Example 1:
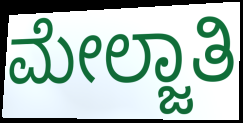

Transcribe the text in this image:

ಮೇಲ್ಜಾತಿ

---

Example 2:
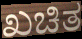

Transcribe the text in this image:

ಖಚಿತ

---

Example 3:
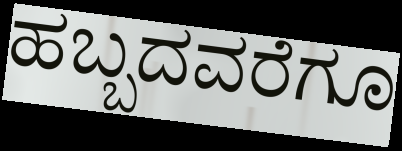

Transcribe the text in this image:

ಹಬ್ಬದವರೆಗೂ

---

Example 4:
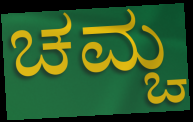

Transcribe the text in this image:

ಚಮ್ಚ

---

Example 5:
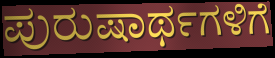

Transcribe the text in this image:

ಪುರುಷಾರ್ಥಗಳಿಗೆ